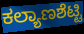
ಕಲ್ಯಾಣಶೆಟ್ಟಿ